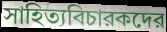
সাহিত্যবিচারকদের